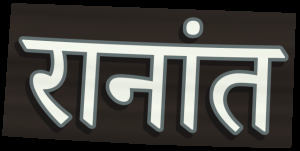
रानांत